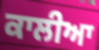
ਕਾਲੀਆ